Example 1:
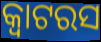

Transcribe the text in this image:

କ୍ୱାଟରସ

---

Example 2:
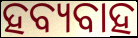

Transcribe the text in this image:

ହବ୍ୟବାହ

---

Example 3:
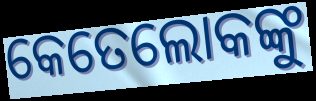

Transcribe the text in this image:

କେତେଲୋକଙ୍କୁ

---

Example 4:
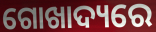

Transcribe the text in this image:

ଗୋଖାଦ୍ୟରେ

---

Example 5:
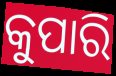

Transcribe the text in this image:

କୁପାରି